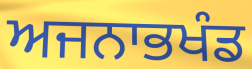
ਅਜਨਾਭਖੰਡ